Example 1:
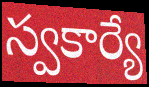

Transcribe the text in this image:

స్వకార్యే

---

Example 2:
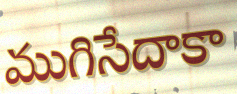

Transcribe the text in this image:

ముగిసేదాకా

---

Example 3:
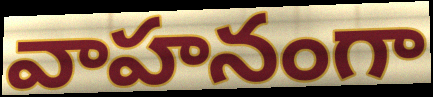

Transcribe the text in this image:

వాహనంగా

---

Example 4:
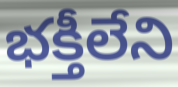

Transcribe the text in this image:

భక్తీలేని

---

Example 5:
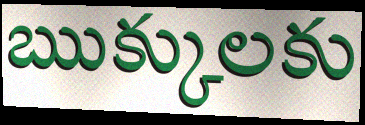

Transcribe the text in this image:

ఋక్కులకు